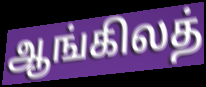
ஆங்கிலத்